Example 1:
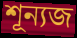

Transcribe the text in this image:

শূন্যজ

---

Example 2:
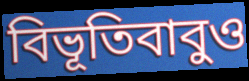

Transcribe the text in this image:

বিভূতিবাবুও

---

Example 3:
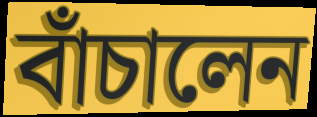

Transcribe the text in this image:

বাঁচালেন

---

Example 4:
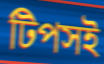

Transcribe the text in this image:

টিপসই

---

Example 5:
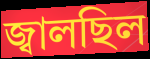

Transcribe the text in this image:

জ্বালছিল